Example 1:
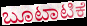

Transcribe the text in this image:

ಬೂಟಾಟಿಕೆ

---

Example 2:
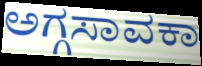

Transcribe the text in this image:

ಅಗ್ಗಸಾವಕಾ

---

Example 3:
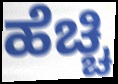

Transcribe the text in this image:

ಹೆಚ್ಚಿ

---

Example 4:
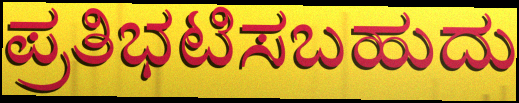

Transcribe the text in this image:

ಪ್ರತಿಭಟಿಸಬಹುದು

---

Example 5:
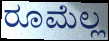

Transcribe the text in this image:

ರೂಮೆಲ್ಲ